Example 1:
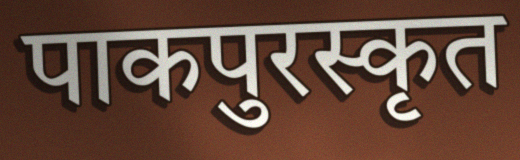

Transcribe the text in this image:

पाकपुरस्कृत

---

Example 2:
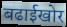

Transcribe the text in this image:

बढाईखोर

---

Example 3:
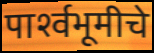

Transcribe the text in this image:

पार्श्वभूमीचे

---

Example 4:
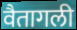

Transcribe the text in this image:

वैतागली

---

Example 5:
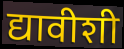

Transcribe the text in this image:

द्यावीशी